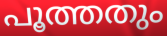
പൂത്തതും